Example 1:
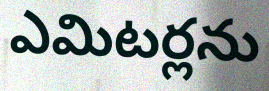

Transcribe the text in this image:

ఎమిటర్లను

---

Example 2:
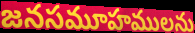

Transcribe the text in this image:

జనసమూహములను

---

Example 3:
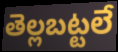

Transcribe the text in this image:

తెల్లబట్టలే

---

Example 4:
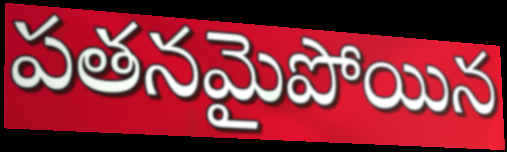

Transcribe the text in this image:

పతనమైపోయిన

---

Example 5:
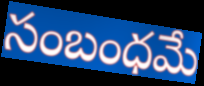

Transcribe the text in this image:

సంబంధమే